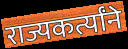
राज्यकर्त्यांने